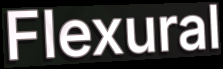
Flexural